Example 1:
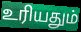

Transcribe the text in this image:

உரியதும்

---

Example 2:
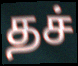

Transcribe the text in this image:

தச்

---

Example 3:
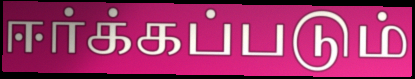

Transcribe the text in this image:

ஈர்க்கப்படும்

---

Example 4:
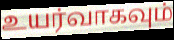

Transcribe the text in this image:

உயர்வாகவும்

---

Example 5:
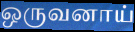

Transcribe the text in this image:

ஒருவனாய்